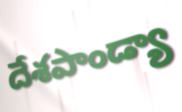
దేశపాండ్యా